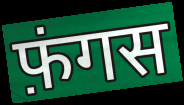
फ़ंगस